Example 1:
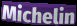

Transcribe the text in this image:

Michelin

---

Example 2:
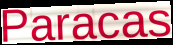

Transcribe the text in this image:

Paracas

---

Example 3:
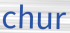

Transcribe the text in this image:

chur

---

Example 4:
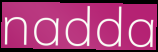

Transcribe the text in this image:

nadda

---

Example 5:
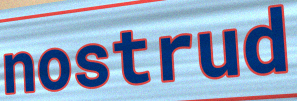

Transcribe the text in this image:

nostrud